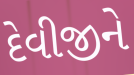
દેવીજીને